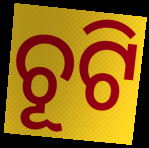
ଚୂଟି